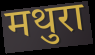
मथुरा